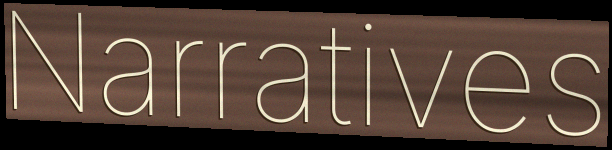
Narratives